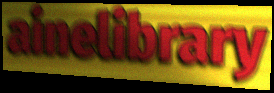
ainelibrary